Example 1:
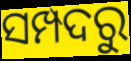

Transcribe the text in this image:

ସମ୍ପଦରୁ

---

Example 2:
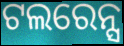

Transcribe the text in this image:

ଟଲରେନ୍ସ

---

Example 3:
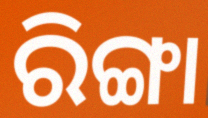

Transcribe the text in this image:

ରିଙ୍ଗା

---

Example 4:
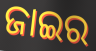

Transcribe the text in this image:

ଜାଇର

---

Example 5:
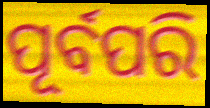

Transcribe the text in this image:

ପୂର୍ବପରି